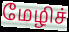
மேழிச்